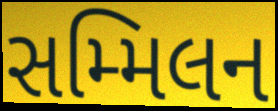
સમ્મિલન